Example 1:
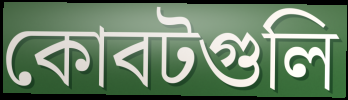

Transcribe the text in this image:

কোবটগুলি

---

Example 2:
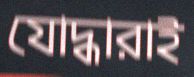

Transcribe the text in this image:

যোদ্ধারাই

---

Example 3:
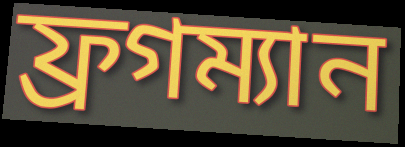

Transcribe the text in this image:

ফ্রগম্যান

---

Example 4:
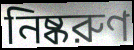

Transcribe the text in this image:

নিষ্করুণ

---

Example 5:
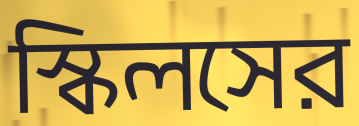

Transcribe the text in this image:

স্কিলসের